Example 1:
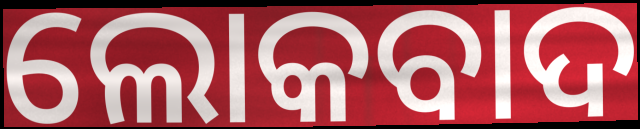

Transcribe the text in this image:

ଲୋକବାଦ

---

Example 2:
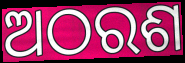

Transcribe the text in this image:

ଅଠରଶ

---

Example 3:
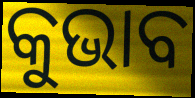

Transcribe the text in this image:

କୁଭାବ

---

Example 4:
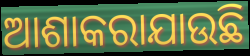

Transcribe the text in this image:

ଆଶାକରାଯାଉଛି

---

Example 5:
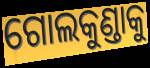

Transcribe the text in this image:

ଗୋଲକୁଣ୍ଡାକୁ